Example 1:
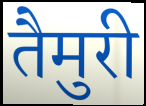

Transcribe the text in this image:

तैमुरी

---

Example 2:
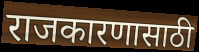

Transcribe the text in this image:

राजकारणासाठी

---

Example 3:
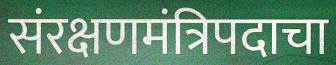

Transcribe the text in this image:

संरक्षणमंत्रिपदाचा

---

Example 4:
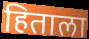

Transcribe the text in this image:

हिताला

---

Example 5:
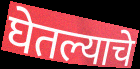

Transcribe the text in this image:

घेतल्याचे